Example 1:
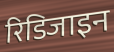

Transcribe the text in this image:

रिडिजाइन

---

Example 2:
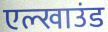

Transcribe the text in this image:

एल्खाउंड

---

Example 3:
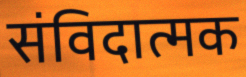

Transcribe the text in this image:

संविदात्मक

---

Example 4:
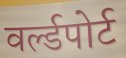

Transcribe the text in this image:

वर्ल्डपोर्ट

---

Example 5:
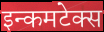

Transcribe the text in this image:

इन्कमटेक्स